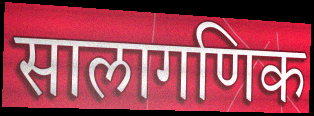
सालागणिक